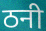
ठनी